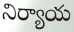
నిర్యాయ